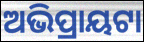
ଅଭିପ୍ରାୟଟା